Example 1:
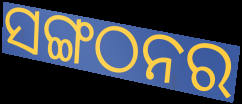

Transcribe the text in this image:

ସଙ୍ଗଠନର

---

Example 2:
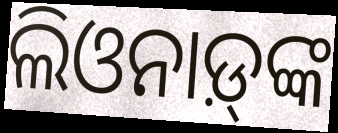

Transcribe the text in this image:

ଲିଓନାଡ଼୍‌ଙ୍କ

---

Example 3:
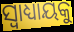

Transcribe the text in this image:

ସ୍ୱାଧ୍ୟାୟକୁ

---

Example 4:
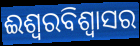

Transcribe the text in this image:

ଈଶ୍ୱରବିଶ୍ୱାସର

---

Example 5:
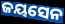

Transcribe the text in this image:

ଜୟସେନ